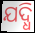
ଯଦ୍ଧି